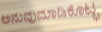
ಅನುವುಮಾಡಿಕೊಟ್ಟ